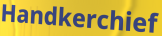
Handkerchief